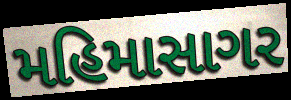
મહિમાસાગર